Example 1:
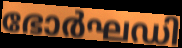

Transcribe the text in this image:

ഭോർഘഡി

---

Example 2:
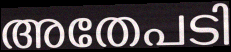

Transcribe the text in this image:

അതേപടി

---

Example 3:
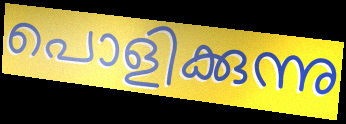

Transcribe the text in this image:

പൊളിക്കുന്നു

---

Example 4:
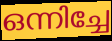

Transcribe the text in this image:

ഒന്നിച്ചേ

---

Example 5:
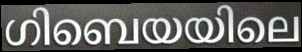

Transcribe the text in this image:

ഗിബെയയിലെ